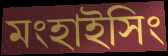
মংহাইসিং